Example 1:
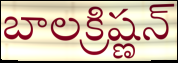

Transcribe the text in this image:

బాలక్రిష్ణన్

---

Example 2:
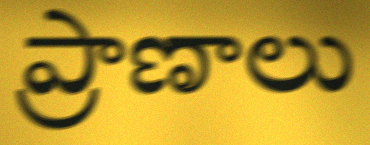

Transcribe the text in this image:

ప్రాణాలు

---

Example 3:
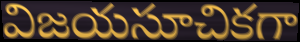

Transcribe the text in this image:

విజయసూచికగా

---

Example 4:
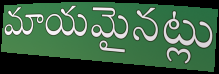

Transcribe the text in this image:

మాయమైనట్లు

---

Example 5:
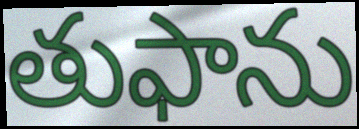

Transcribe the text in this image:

తుఫాను